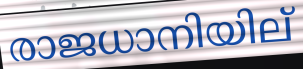
രാജധാനിയില്